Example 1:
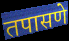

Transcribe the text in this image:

तपासणे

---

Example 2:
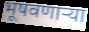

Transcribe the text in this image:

भूषवणाऱ्या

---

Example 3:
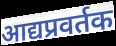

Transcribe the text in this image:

आद्यप्रवर्तक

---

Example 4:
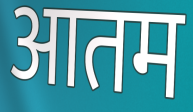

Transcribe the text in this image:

आतम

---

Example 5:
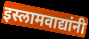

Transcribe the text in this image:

इस्लामवाद्यांनी